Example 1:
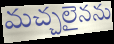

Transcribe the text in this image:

మచ్చలైనను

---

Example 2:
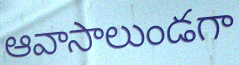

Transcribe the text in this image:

ఆవాసాలుండగా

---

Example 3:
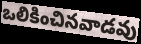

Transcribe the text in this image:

ఒలికించినవాడవు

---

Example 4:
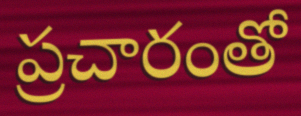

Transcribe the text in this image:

ప్రచారంతో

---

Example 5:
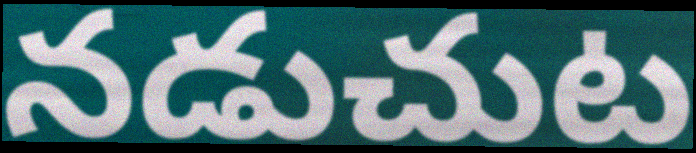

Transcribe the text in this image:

నడుచుట